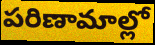
పరిణామాల్లో